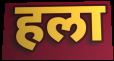
हला